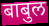
बाबुल